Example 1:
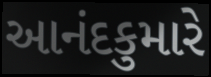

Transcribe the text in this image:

આનંદકુમારે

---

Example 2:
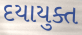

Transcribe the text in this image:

દયાયુક્ત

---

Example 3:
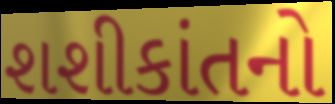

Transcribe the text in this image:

શશીકાંતનો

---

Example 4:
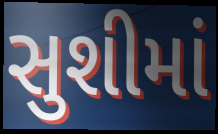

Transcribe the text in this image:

સુશીમાં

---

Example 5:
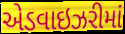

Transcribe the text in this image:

એડવાઇઝરીમાં